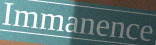
Immanence